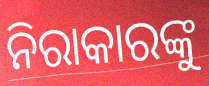
ନିରାକାରଙ୍କୁ